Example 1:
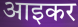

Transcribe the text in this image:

आइकर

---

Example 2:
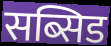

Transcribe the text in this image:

सब्सिड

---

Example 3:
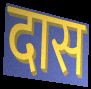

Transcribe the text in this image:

दास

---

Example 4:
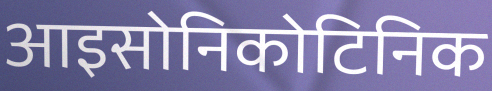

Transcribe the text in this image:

आइसोनिकोटिनिक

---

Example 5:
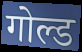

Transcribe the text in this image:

गोल्ड